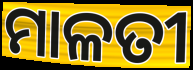
ମାଳତୀ